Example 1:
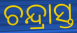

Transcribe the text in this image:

ଚନ୍ଦ୍ରାସ୍ତ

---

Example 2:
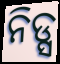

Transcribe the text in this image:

ନିଡ୍ସ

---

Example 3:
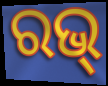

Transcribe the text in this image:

ରଭ୍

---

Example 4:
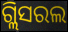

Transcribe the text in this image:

ଗ୍ଲିସରଲ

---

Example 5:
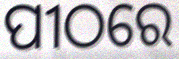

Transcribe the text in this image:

ପୀଠରେ